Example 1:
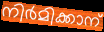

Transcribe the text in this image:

നിർമിക്കാന്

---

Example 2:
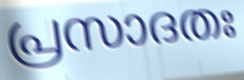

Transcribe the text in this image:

പ്രസാദതഃ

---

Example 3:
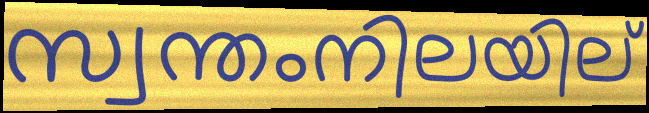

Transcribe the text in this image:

സ്വന്തംനിലയില്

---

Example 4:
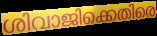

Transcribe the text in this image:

ശിവാജിക്കെതിരെ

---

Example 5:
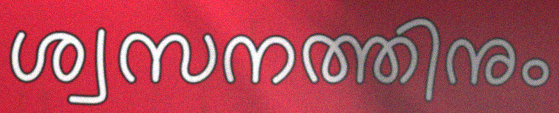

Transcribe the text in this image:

ശ്വസനത്തിനും